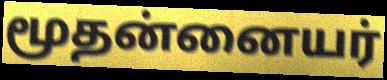
மூதன்னையர்